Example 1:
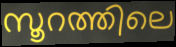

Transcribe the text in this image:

സൂറത്തിലെ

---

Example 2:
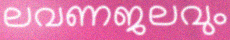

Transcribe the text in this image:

ലവണജലവും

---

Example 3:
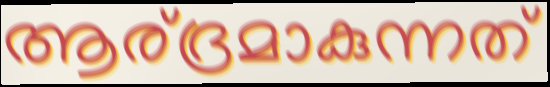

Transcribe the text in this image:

ആര്ദ്രമാകുന്നത്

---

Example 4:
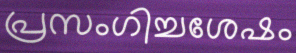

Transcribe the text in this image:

പ്രസംഗിച്ചശേഷം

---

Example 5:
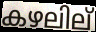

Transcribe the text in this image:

കഴലില്